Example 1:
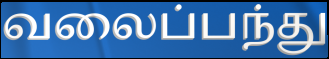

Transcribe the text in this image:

வலைப்பந்து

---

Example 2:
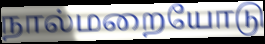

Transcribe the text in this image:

நால்மறையோடு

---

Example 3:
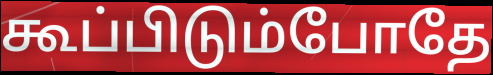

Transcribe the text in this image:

கூப்பிடும்போதே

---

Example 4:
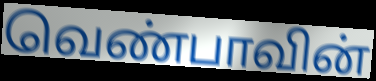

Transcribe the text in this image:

வெண்பாவின்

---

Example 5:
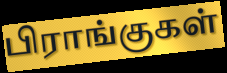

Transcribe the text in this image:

பிராங்குகள்